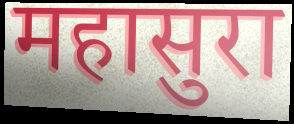
महासुरा